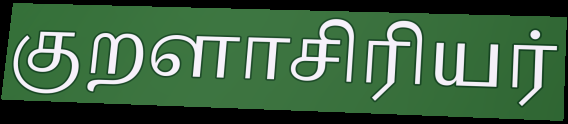
குறளாசிரியர்